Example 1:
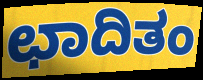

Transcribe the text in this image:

ಛಾದಿತಂ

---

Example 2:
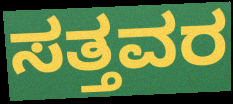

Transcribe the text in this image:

ಸತ್ತವರ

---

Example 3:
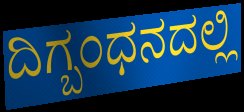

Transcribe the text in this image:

ದಿಗ್ಬಂಧನದಲ್ಲಿ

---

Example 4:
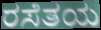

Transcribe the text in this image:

ರಸೆತಯ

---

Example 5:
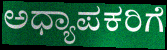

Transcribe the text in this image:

ಅಧ್ಯಾಪಕರಿಗೆ